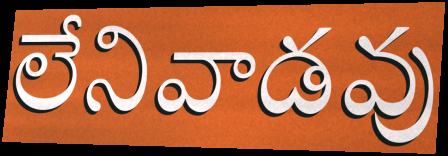
లేనివాడవు